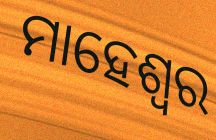
ମାହେଶ୍ଵର